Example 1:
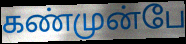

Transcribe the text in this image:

கண்முன்பே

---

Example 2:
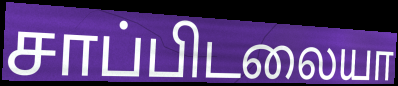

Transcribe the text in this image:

சாப்பிடலையா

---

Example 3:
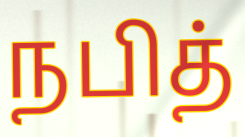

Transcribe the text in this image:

நபித்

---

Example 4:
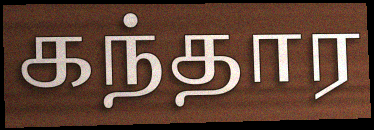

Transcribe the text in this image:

கந்தார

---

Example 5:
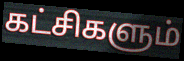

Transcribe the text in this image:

கட்சிகளும்